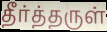
தீர்த்தருள்